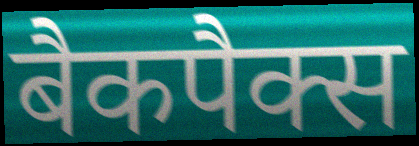
बैकपैक्स